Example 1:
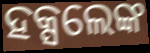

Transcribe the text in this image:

ହକ୍ସଲେଙ୍କ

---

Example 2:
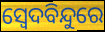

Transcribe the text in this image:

ସ୍ୱେଦବିନ୍ଦୁରେ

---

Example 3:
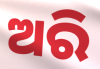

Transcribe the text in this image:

ଅରି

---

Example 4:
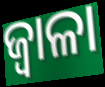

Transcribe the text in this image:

ଜ୍ୱାଳା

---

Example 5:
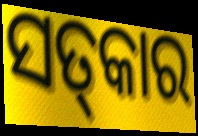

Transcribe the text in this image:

ସତ୍‌କାର